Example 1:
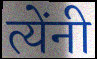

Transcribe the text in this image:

त्येंनी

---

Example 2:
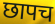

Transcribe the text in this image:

छापच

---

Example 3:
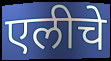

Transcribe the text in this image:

एलीचे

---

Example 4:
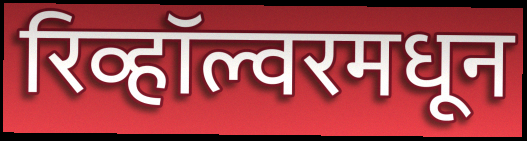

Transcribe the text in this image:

रिव्हॉल्वरमधून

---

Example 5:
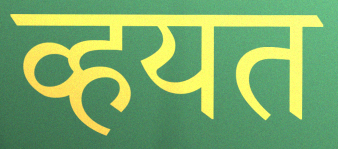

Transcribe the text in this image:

व्हयत